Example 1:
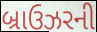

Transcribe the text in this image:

બ્રાઉઝરની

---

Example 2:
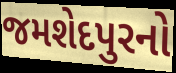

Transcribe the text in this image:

જમશેદપુરનો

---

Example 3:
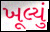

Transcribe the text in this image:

ખૂલ્યું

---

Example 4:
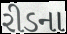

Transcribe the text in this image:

રીડના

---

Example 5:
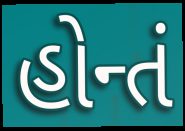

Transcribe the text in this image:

હોન્તં